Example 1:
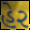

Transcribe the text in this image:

હેર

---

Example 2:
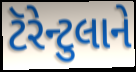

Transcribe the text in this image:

ટૅરેન્ટુલાને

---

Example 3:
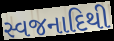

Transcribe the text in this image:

સ્વજનાદિથી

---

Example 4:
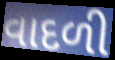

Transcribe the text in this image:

વાદળી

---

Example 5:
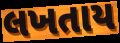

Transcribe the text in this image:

લખતાય